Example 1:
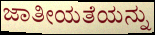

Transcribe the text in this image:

ಜಾತೀಯತೆಯನ್ನು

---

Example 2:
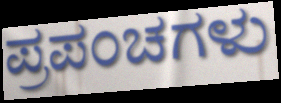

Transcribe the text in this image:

ಪ್ರಪಂಚಗಳು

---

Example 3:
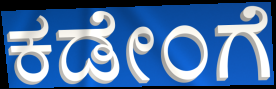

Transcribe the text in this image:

ಕಡೇಂಗೆ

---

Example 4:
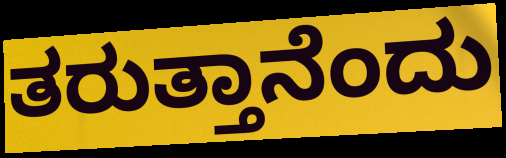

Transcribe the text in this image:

ತರುತ್ತಾನೆಂದು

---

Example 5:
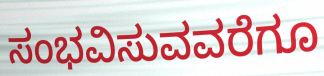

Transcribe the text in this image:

ಸಂಭವಿಸುವವರೆಗೂ